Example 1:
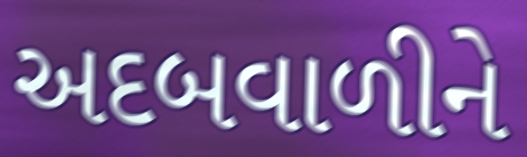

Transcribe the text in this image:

અદબવાળીને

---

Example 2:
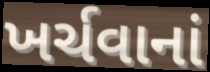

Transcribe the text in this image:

ખર્ચવાનાં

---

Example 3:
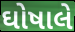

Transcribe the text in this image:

ઘોષાલે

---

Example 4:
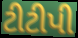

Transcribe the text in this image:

ટીટીપી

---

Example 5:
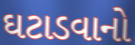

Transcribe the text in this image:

ઘટાડવાનો